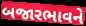
બજારભાવને